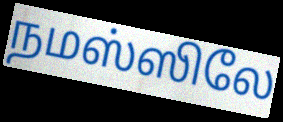
நமஸ்ஸிலே